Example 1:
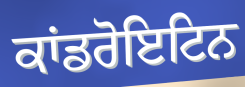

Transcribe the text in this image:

ਕਾਂਡਰੋਇਟਿਨ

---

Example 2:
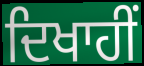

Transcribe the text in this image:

ਦਿਖਾਹੀਂ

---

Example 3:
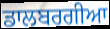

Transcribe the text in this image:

ਡਾਲਬਰਗੀਆ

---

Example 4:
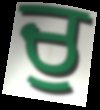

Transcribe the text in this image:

ਚੁ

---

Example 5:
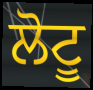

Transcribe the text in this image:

ਲੋਟੂ